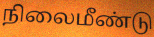
நிலைமீண்டு